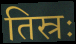
तिस्रः